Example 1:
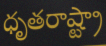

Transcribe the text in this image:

ధృతరాష్ట్రా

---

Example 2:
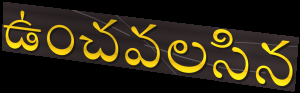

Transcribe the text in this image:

ఉంచవలసిన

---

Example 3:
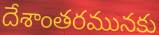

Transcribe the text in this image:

దేశాంతరమునకు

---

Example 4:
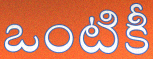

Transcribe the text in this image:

ఒంటికీ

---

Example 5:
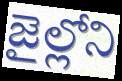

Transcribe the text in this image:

జైల్లోని